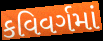
કવિવર્ગમાં